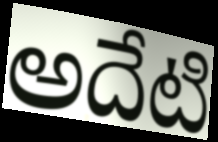
అదేటి